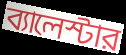
ব্যালেস্টার